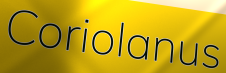
Coriolanus